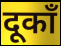
दूकाँ